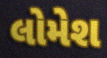
લોમેશ